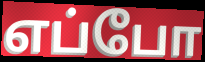
எப்போ